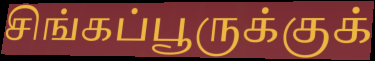
சிங்கப்பூருக்குக்